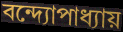
বন্দ্যোপাধ্য়ায়